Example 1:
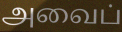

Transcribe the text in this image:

அவைப்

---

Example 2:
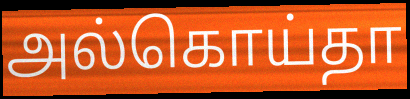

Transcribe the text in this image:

அல்கொய்தா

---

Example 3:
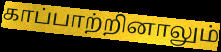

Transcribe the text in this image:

காப்பாற்றினாலும்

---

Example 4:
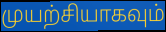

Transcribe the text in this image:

முயற்சியாகவும்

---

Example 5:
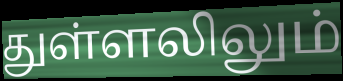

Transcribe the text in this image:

துள்ளலிலும்